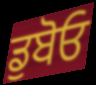
ਡੁਬੋਓ